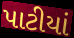
પાટીયાં